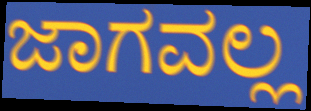
ಜಾಗವಲ್ಲ